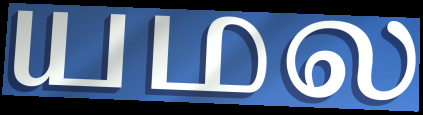
யமல